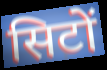
सिटों